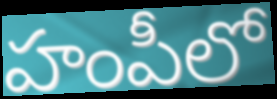
హంపీలో